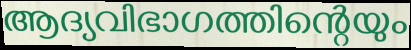
ആദ്യവിഭാഗത്തിന്റെയും